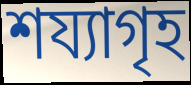
শয্যাগৃহ